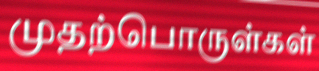
முதற்பொருள்கள்